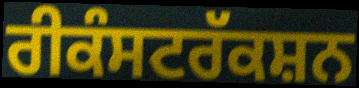
ਰੀਕੰਸਟਰੱਕਸ਼ਨ